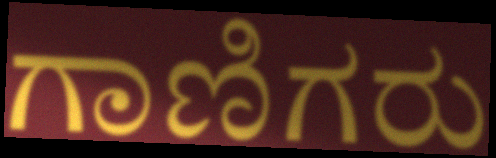
ಗಾಣಿಗರು